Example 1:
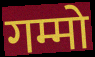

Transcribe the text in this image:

गम्मो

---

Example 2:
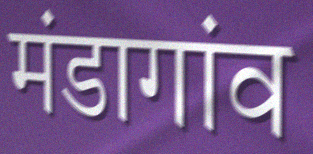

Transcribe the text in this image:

मंडागांव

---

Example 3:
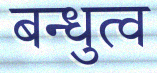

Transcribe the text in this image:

बन्धुत्व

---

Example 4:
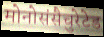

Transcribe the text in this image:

मोनोसंसैचुरेटेड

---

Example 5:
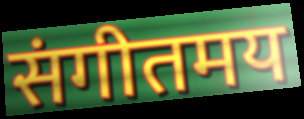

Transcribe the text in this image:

संगीतमय